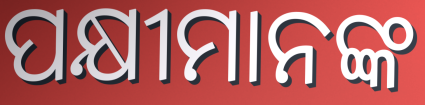
ପକ୍ଷୀମାନଙ୍କ